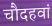
चौदहवां